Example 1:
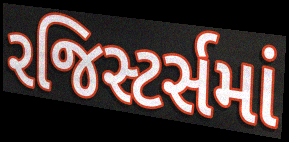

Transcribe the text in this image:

રજિસ્ટર્સમાં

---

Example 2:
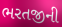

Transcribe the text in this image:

ભરતજીની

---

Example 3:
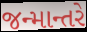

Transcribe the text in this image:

જન્માન્તરે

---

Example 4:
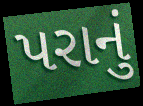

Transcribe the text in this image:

પરાનું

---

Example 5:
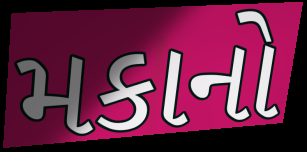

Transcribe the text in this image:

મકાનો